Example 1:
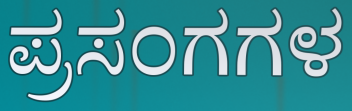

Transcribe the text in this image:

ಪ್ರಸಂಗಗಳ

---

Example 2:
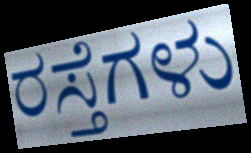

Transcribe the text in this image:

ರಸ್ತೆಗಳು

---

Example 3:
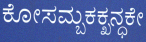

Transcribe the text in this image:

ಕೋಸಮ್ಬಕಕ್ಖನ್ಧಕೇ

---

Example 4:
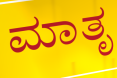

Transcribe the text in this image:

ಮಾತೃ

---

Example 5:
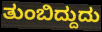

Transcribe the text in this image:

ತುಂಬಿದ್ದುದು